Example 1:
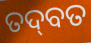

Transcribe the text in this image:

ତଦ୍‌ବତ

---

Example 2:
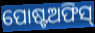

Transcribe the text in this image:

ପୋଷ୍ଟଅଫିସ୍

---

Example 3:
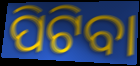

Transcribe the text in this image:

ପିଟିବା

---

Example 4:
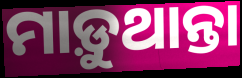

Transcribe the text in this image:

ମାଡ଼ୁଥାନ୍ତା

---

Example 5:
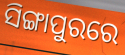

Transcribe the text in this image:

ସିଙ୍ଗାପୁରରେ